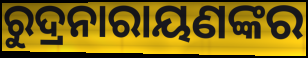
ରୁଦ୍ରନାରାୟଣଙ୍କର